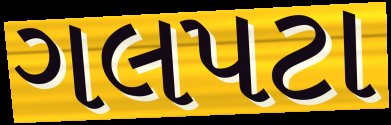
ગલપટા